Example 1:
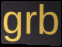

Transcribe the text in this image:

grb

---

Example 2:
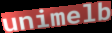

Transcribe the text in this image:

unimelb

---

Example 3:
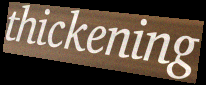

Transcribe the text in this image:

thickening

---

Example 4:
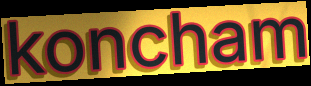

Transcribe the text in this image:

koncham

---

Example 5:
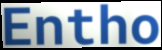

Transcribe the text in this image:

Entho